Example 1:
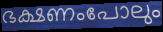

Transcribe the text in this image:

ഭക്ഷണംപോലും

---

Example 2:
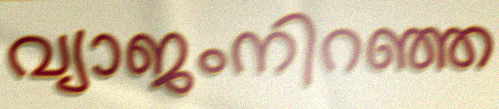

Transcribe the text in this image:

വ്യാജംനിറഞ്ഞ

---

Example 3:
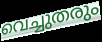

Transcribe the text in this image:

വെച്ചുതരും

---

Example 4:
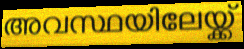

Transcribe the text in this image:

അവസ്ഥയിലേയ്ക്ക്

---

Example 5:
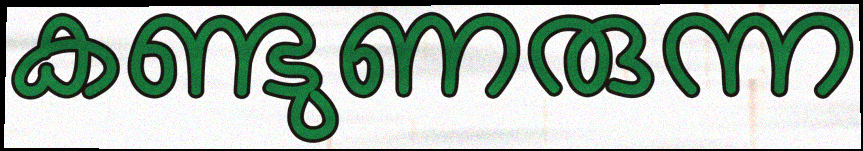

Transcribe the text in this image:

കണ്ടുണരുന്ന